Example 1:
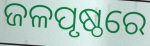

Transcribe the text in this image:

ଜଳପୃଷ୍ଠରେ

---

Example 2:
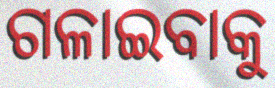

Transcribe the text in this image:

ଗଳାଇବାକୁ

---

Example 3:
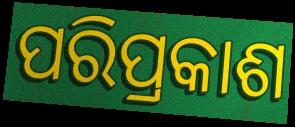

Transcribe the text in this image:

ପରିପ୍ରକାଶ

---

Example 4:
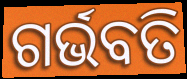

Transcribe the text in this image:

ଗର୍ଭବତି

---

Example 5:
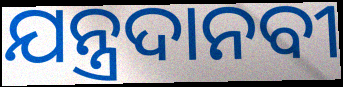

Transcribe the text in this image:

ଯନ୍ତ୍ରଦାନବୀ